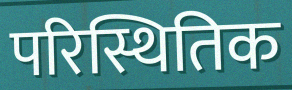
परिस्थितिक